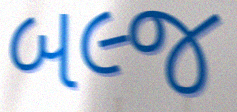
બલ્જ